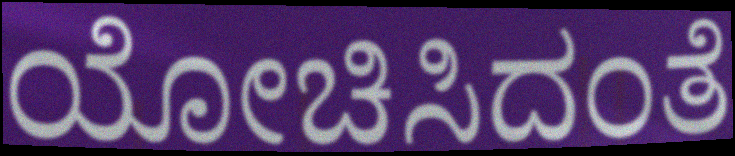
ಯೋಚಿಸಿದಂತೆ